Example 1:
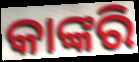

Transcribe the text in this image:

କାଙ୍କରି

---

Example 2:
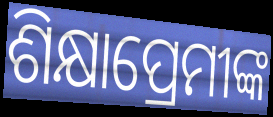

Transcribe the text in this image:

ଶିକ୍ଷାପ୍ରେମୀଙ୍କ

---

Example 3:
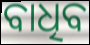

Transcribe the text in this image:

ବାଧିବ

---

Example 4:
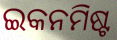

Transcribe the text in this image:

ଇକନମିଷ୍ଟ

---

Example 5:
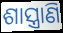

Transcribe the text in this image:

ଶାସ୍ତ୍ରାଣି